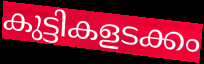
കുട്ടികളടക്കം